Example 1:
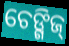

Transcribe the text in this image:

ଚେଙ୍ଗିଜ୍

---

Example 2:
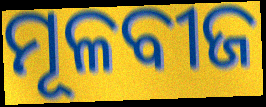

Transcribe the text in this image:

ମୂଳବୀଜ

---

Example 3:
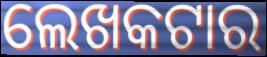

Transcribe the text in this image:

ଲେଖକଟାର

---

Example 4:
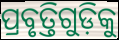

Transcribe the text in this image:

ପ୍ରବୃତ୍ତିଗୁଡ଼ିକୁ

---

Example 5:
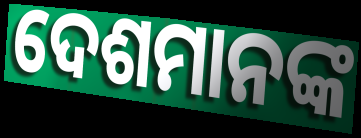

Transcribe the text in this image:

ଦେଶମାନଙ୍କ